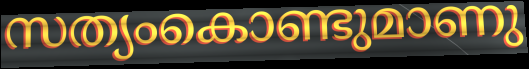
സത്യംകൊണ്ടുമാണു